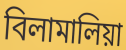
বিলামালিয়া